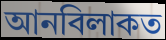
আনবিলাকত